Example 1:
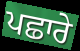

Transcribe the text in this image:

ਪਛਾਰੇ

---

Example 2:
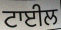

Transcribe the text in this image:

ਟਾਈਲ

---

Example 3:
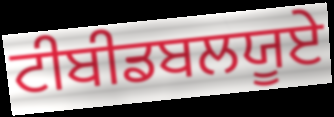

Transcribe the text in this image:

ਟੀਬੀਡਬਲਯੂਏ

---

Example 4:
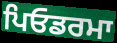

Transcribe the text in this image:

ਪਿਓਡਰਮਾ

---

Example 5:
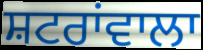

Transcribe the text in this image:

ਸ਼ਟਰਾਂਵਾਲਾ